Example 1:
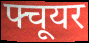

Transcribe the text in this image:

फ्चूयर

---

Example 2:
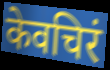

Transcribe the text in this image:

केवचिरं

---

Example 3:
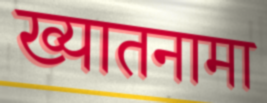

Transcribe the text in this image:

ख्यातनामा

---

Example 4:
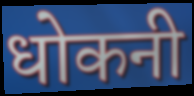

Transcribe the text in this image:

धोकनी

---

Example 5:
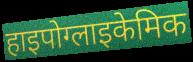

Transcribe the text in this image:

हाइपोग्लाइकेमिक